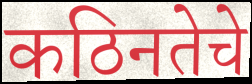
कठिनतेचे